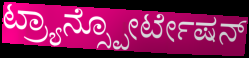
ಟ್ರ್ಯಾನ್ಸ್ಪೋರ್ಟೇಷನ್